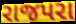
રાજપરા